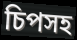
চিপসহ